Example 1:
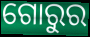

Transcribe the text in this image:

ଗୋରୁର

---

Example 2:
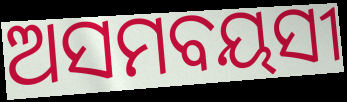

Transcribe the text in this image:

ଅସମବୟସୀ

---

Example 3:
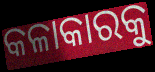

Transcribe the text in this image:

କଳାକାରକୁ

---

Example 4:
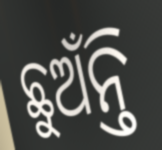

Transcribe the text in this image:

ଛୁଅଁନ୍ତି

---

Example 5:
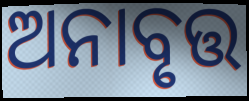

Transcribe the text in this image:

ଅନାବୃତ୍ତ